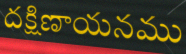
దక్షిణాయనము